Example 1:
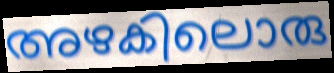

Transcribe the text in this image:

അഴകിലൊരു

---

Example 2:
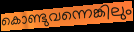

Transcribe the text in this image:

കൊണ്ടുവന്നെങ്കിലും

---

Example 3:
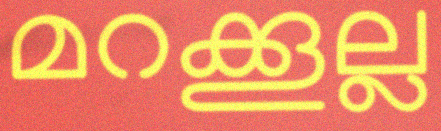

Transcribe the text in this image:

മറക്കൂല്ല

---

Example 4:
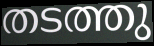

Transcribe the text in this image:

തടത്തു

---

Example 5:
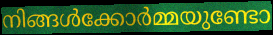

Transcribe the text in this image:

നിങ്ങൾക്കോർമ്മയുണ്ടോ